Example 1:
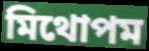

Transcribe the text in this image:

মিথোপম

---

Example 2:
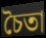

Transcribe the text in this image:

চৈতা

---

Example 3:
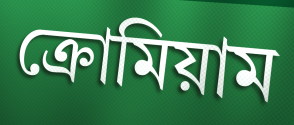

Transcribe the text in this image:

ক্রোমিয়াম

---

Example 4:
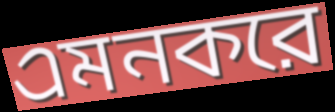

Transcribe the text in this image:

এমনকরে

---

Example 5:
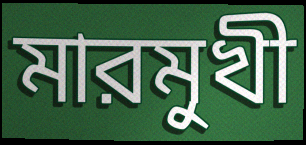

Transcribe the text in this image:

মারমুখী